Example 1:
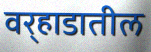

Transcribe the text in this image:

वर्‍हाडातील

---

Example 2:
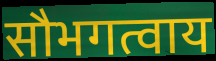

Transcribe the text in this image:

सौभगत्वाय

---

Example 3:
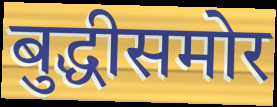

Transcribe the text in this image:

बुद्धीसमोर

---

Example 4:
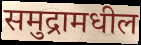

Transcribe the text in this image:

समुद्रामधील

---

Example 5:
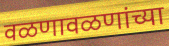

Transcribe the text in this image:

वळणावळणांच्या